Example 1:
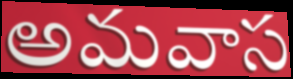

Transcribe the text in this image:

అమవాస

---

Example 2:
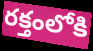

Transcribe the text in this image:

రక్తంలోకి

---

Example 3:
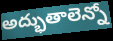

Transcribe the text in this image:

అద్భుతాలెన్నో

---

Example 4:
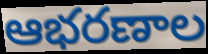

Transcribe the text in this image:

ఆభరణాల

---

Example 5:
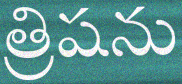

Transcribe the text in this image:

త్రిషను